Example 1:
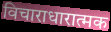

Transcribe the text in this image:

विचाराधारात्मक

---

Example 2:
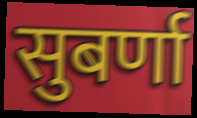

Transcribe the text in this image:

सुबर्णा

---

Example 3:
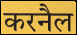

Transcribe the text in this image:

करनैल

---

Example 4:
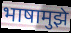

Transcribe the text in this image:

भाषामुझे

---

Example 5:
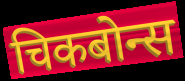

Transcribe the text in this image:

चिकबोन्स